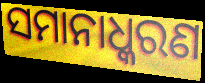
ସମାନାଧ୍କରଣ